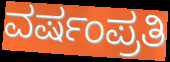
ವರ್ಷಂಪ್ರತಿ